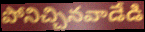
పోనిచ్చినవాడేడి